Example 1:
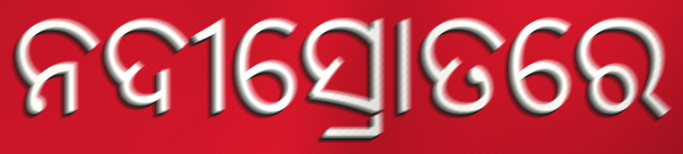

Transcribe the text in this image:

ନଦୀସ୍ରୋତରେ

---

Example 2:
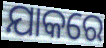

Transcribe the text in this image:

ଯାକରେ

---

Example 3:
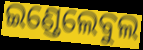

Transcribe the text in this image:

ଇଣ୍ଡେଲେବୁଲ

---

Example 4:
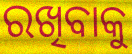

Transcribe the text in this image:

ରଖିବାକୁ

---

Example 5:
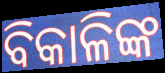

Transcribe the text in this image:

ବିକାଳିଙ୍କ